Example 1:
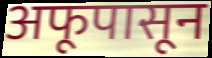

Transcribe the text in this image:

अफूपासून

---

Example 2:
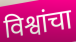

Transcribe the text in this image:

विश्वांचा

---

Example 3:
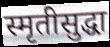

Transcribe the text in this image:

स्मृतीसुद्धा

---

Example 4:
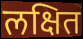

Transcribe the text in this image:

लक्षित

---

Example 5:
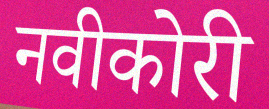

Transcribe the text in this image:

नवीकोरी